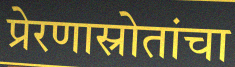
प्रेरणास्रोतांचा